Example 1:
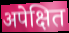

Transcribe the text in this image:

अपेक्षित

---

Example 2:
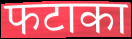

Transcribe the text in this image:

फटाका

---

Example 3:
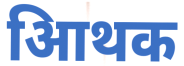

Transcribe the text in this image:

आिथक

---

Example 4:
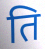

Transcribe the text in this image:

ति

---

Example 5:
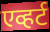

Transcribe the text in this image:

एव्हर्ट